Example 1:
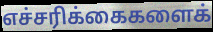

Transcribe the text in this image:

எச்சரிக்கைகளைக்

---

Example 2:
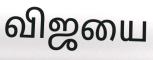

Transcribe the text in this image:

விஜயை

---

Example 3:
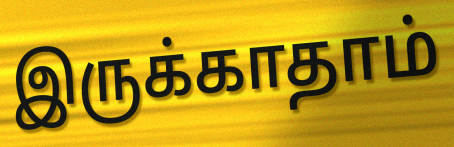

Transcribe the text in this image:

இருக்காதாம்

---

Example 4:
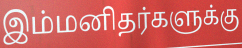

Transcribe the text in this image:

இம்மனிதர்களுக்கு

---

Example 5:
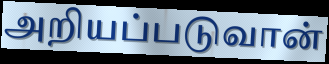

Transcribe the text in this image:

அறியப்படுவான்